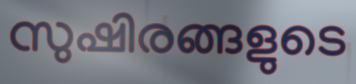
സുഷിരങ്ങളുടെ